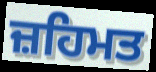
ਜ਼ਹਿਮਤ